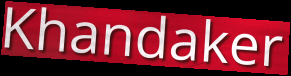
Khandaker